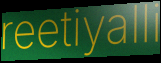
reetiyalli